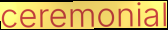
ceremonial